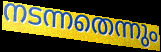
നടന്നതെന്നും